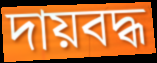
দায়বদ্ধ